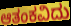
ಆತಂಕವಿದು